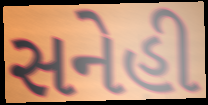
સનેહી